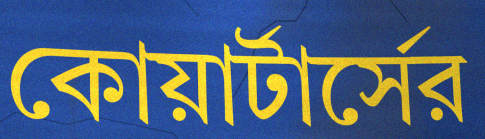
কোয়ার্টার্সের